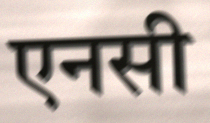
एनसी